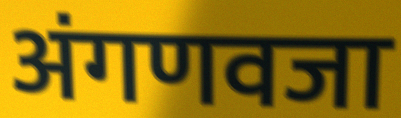
अंगणवजा